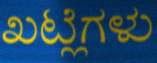
ಖಟ್ಲೆಗಳು